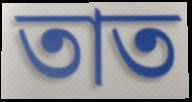
তাত